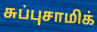
சுப்புசாமிக்